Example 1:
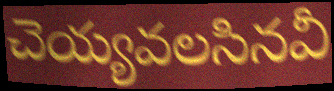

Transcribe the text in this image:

చెయ్యవలసినవీ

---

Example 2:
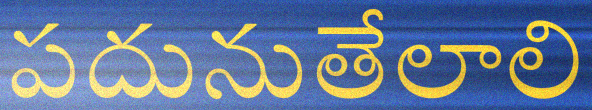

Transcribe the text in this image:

పదునుతేలాలి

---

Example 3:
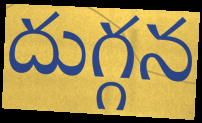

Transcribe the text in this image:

దుగ్గన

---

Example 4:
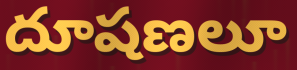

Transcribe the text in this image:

దూషణలూ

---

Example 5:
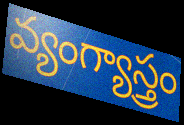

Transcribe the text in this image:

వ్యంగ్యాస్త్రం